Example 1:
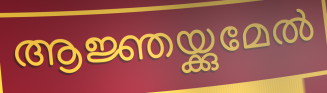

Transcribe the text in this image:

ആജ്ഞയ്ക്കുമേൽ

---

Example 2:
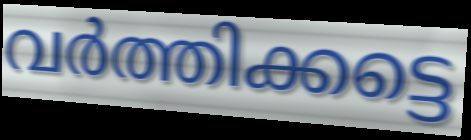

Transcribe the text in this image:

വർത്തിക്കട്ടെ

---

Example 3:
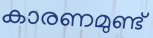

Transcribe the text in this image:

കാരണമുണ്ട്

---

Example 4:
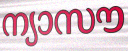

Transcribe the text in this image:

ന്യാസൗ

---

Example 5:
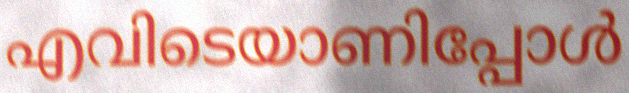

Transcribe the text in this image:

എവിടെയാണിപ്പോൾ